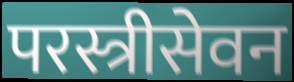
परस्त्रीसेवन